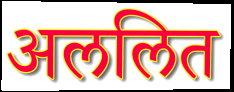
अललित